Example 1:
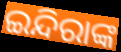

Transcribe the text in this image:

ଇନ୍ଦିରାଙ୍କ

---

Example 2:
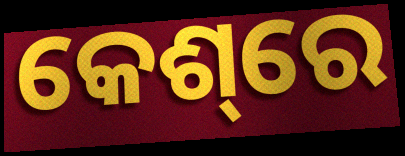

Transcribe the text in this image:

କେଶ୍‌ରେ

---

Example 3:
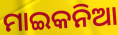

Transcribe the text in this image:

ମାଇକନିଆ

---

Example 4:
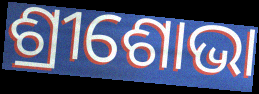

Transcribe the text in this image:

ଶ୍ରୀଶୋଭା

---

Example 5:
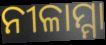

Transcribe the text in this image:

ନୀଳାମ୍ମା